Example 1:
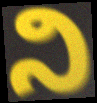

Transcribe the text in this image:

ನಿ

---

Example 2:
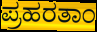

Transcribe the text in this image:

ಪ್ರಹರತಾಂ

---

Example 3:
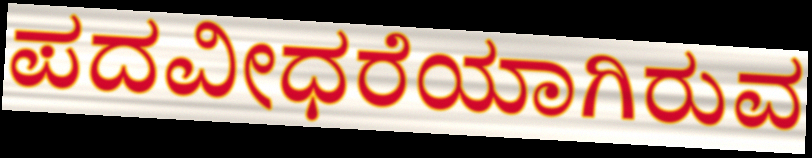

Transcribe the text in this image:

ಪದವೀಧರೆಯಾಗಿರುವ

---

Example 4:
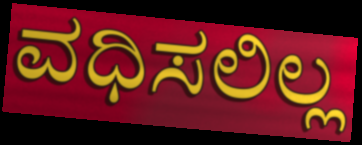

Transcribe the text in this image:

ವಧಿಸಲಿಲ್ಲ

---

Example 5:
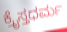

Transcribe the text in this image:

ಕ್ರೈಸ್ತಧರ್ಮ